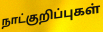
நாட்குறிப்புகள்